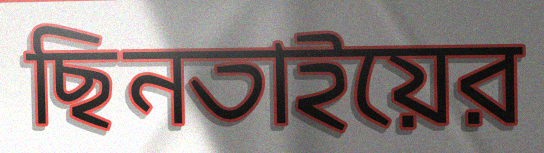
ছিনতাইয়ের